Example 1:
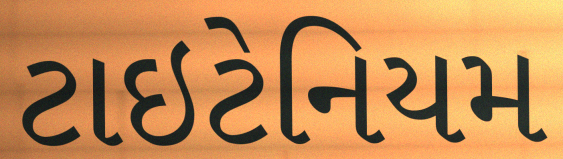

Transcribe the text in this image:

ટાઇટેનિયમ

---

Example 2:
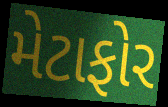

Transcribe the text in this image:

મેટાફોર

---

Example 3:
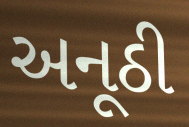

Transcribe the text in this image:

અનૂઠી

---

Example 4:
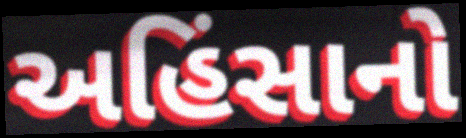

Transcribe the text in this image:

અહિંસાનો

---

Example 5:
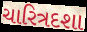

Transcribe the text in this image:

ચારિત્રદશા